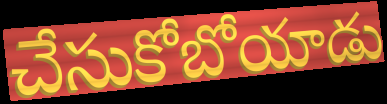
చేసుకోబోయాడు